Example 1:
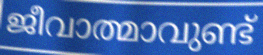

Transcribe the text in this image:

ജീവാത്മാവുണ്ട്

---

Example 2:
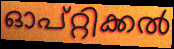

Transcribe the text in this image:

ഓപ്റ്റിക്കൽ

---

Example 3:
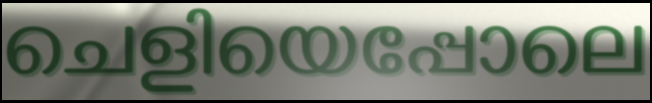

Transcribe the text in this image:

ചെളിയെപ്പോലെ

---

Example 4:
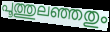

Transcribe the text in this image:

പൂത്തുലഞ്ഞതും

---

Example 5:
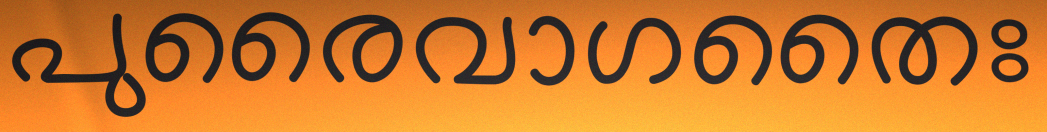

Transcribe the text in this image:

പുരൈവാഗതൈഃ